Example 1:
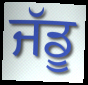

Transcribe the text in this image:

ਜੱਡੂ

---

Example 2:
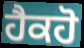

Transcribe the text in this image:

ਹੈਕਹੋ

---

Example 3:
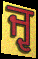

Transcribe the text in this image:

ਜ੍ਦ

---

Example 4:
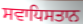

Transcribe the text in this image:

ਸਵਾਧਿਸਤਾਨ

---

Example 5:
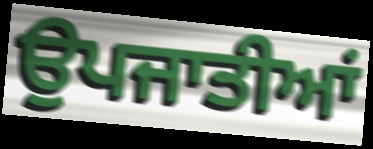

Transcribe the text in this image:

ਉਪਜਾਤੀਆਂ